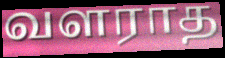
வளராத